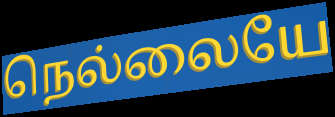
நெல்லையே